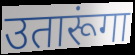
उतारूंगा